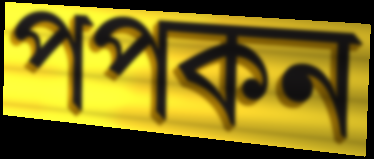
পপকন